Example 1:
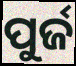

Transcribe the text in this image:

ପୁର୍ଜ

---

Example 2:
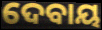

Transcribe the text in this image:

ଦେବାୟ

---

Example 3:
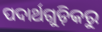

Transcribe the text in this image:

ପଦାର୍ଥଗୁଡ଼ିକରୁ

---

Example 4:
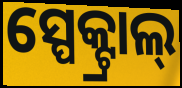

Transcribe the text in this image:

ସ୍ପେକ୍ଟ୍ରାଲ୍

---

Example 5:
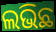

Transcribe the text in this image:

ଲଭିଛ